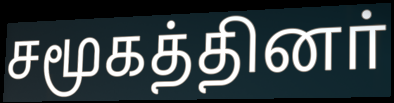
சமூகத்தினர்